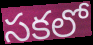
సకలో